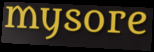
mysore